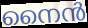
നൈൻ